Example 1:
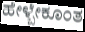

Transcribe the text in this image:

ಹೇಳ್ಬೇಕೂಂತ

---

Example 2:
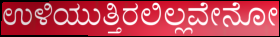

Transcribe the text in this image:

ಉಳಿಯುತ್ತಿರಲಿಲ್ಲವೇನೋ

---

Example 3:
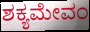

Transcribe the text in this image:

ಶಕ್ಯಮೇವಂ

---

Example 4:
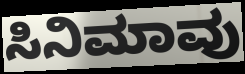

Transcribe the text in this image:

ಸಿನಿಮಾವು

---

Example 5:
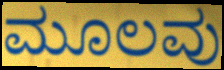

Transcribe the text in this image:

ಮೂಲವು